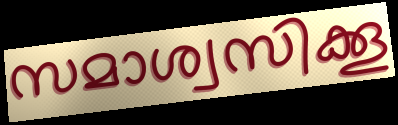
സമാശ്വസിക്കൂ